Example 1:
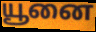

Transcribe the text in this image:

யூனை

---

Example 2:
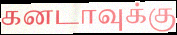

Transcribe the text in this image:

கனடாவுக்கு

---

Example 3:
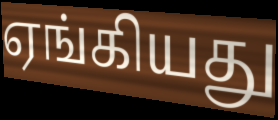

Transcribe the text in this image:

ஏங்கியது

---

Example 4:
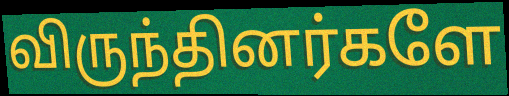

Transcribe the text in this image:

விருந்தினர்களே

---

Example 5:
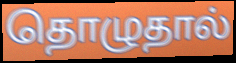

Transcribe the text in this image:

தொழுதால்